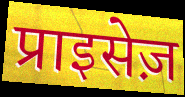
प्राइसेज़